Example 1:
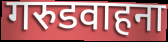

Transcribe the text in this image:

गरुडवाहना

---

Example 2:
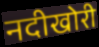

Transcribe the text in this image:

नदीखोरी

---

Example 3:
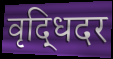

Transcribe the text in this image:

वृद्धिदर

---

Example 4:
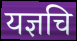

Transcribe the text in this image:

यज्ञचि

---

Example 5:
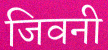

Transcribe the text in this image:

जिवनी